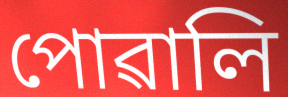
পোৱালি